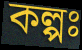
কল্পঃ